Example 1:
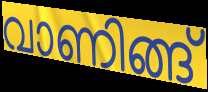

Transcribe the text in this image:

വാണിങ്ങ്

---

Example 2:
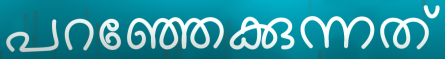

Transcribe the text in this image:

പറഞ്ഞേക്കുന്നത്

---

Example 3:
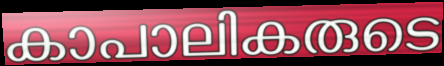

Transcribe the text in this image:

കാപാലികരുടെ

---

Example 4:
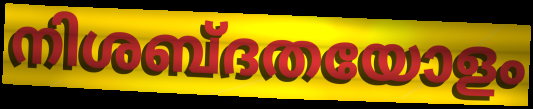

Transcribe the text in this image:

നിശബ്ദതയോളം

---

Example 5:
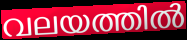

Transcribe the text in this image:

വലയത്തിൽ